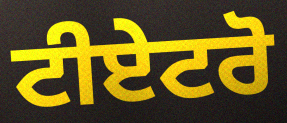
ਟੀਏਟਰੋ